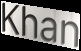
Khan